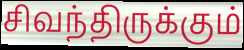
சிவந்திருக்கும்